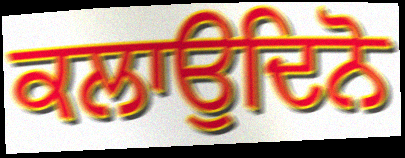
ਕਲਾਉਦਿਨੋ